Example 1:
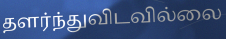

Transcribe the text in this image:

தளர்ந்துவிடவில்லை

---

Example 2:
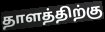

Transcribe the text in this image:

தாளத்திற்கு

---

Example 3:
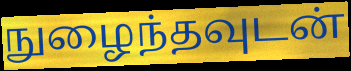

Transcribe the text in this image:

நுழைந்தவுடன்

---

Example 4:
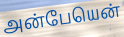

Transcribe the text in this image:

அன்பேயென்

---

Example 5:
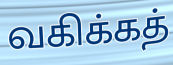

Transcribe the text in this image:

வகிக்கத்